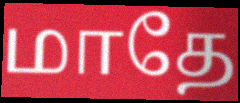
மாதே